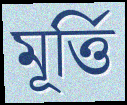
মূৰ্ত্তি